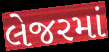
લેજરમાં